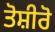
ਤੋਸ਼ੀਰੋ